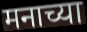
मनाच्या